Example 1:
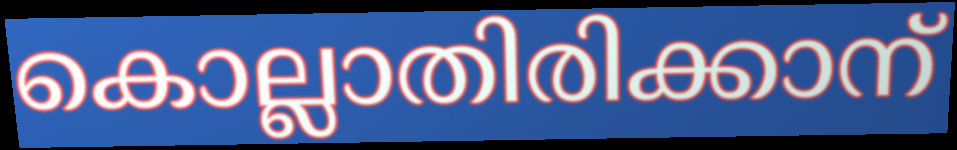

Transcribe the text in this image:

കൊല്ലാതിരിക്കാന്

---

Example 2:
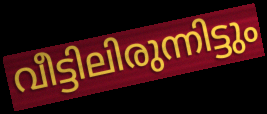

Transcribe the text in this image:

വീട്ടിലിരുന്നിട്ടും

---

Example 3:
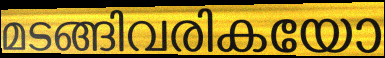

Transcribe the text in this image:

മടങ്ങിവരികയോ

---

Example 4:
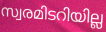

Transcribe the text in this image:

സ്വരമിടറിയില്ല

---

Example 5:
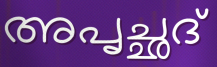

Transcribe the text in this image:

അപൃച്ഛദ്